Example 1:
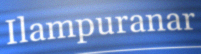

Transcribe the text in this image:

Ilampuranar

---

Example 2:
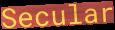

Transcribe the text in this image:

Secular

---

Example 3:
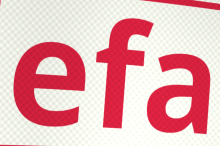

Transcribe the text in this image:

efa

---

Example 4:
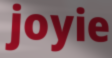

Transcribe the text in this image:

joyie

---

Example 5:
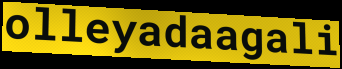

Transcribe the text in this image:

olleyadaagali